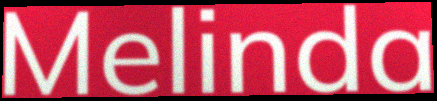
Melinda